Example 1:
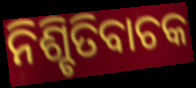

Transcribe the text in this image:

ନିଶ୍ଚିତିବାଚକ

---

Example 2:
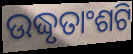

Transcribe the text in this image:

ଉଦ୍ଧୃତାଂଶଟି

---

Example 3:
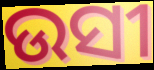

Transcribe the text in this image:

ଉସୀ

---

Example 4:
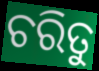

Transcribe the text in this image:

ଚରିତୁ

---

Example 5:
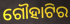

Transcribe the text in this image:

ଗୌହାଟିର